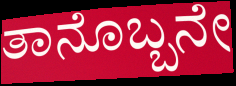
ತಾನೊಬ್ಬನೇ